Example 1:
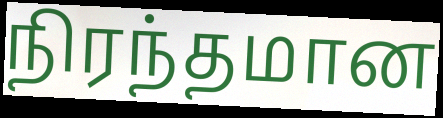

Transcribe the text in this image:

நிரந்தமான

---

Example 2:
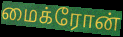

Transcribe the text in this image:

மைக்ரோன்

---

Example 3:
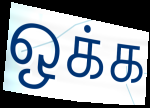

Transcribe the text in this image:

ஒக்க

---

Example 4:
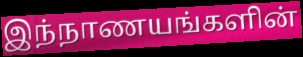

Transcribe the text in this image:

இந்நாணயங்களின்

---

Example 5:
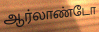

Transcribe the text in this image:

ஆர்லாண்டோ